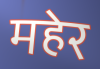
महेर